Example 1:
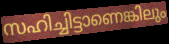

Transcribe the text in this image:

സഹിച്ചിട്ടാണെങ്കിലും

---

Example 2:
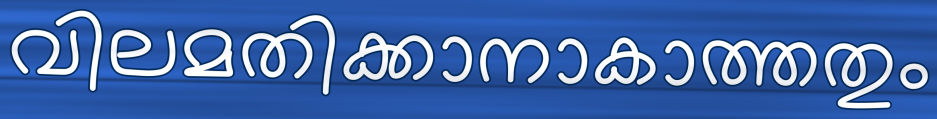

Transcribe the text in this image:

വിലമതിക്കാനാകാത്തതും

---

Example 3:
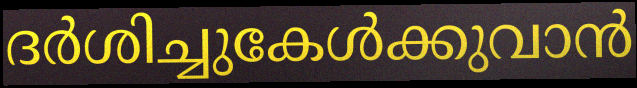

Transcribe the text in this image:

ദർശിച്ചുകേൾക്കുവാൻ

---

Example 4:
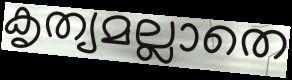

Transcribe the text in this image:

കൃത്യമല്ലാതെ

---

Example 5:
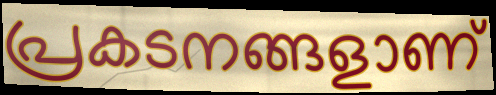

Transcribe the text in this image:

പ്രകടനങ്ങളാണ്